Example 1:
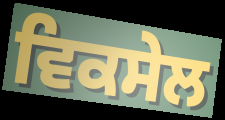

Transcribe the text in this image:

ਵਿਕਸੇਲ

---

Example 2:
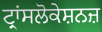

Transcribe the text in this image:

ਟ੍ਰਾਂਸਲੋਕੇਸ਼ਨਜ਼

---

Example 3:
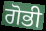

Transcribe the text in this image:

ਗੋਭੀ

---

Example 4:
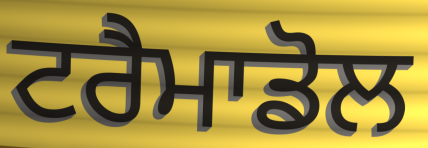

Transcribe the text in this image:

ਟਰੈਮਾਡੋਲ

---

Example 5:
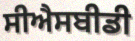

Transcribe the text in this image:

ਸੀਐਸਬੀਡੀ